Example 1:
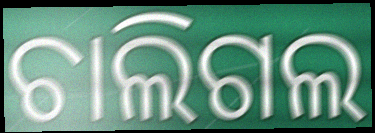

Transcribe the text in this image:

ଚାଲିଗଲ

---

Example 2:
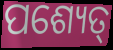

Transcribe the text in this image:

ପଶ୍ୟେତ୍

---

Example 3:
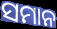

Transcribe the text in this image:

ସମାନ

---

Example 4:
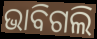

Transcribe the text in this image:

ଭାବିଗଲି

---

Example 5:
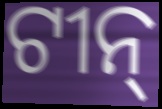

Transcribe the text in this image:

ଟୀନ୍